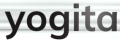
yogita